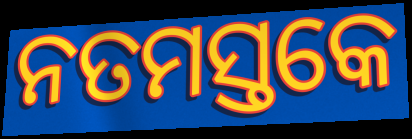
ନତମସ୍ତକେ